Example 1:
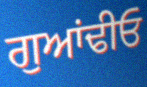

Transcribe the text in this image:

ਗੁਆਂਢੀਓ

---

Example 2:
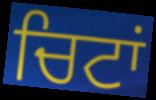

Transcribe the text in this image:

ਚਿਟਾਂ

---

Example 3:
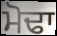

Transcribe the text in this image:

ਮੋਢਾ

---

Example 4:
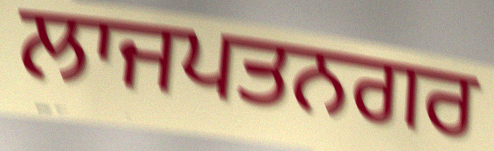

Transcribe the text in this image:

ਲਾਜਪਤਨਗਰ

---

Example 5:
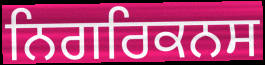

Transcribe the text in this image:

ਨਿਗਰਿਕਨਸ